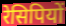
रेसिपियों